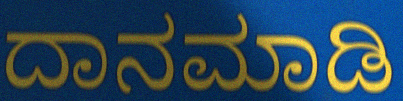
ದಾನಮಾಡಿ